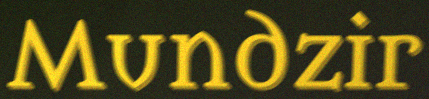
Mundzir